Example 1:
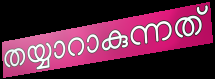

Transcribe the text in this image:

തയ്യാറാകുന്നത്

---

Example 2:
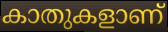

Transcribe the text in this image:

കാതുകളാണ്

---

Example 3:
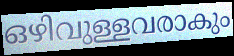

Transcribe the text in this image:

ഒഴിവുള്ളവരാകും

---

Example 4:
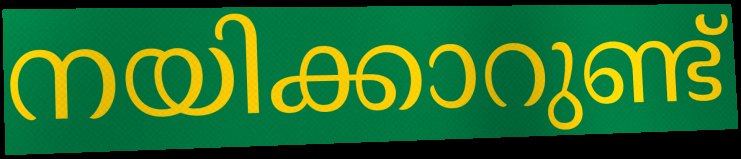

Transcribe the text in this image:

നയിക്കാറുണ്ട്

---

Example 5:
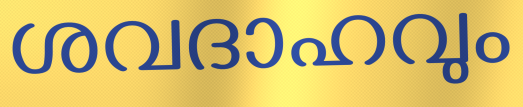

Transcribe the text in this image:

ശവദാഹവും